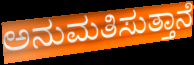
ಅನುಮತಿಸುತ್ತಾನೆ